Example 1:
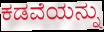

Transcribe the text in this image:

ಕಡವೆಯನ್ನು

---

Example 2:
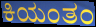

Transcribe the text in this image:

ಕಿಯಂತಂ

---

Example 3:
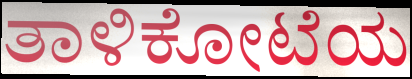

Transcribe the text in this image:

ತಾಳಿಕೋಟೆಯ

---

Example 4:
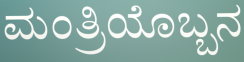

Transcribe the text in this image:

ಮಂತ್ರಿಯೊಬ್ಬನ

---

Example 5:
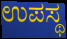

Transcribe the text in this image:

ಉಪಸ್ಥ